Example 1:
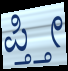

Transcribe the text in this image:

ಪ್ತ್ತೀ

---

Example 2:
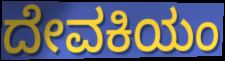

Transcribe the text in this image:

ದೇವಕಿಯಂ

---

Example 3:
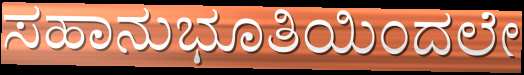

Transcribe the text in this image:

ಸಹಾನುಭೂತಿಯಿಂದಲೇ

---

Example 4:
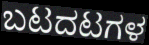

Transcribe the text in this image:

ಬಟದಟಗಳ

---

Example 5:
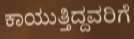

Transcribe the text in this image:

ಕಾಯುತ್ತಿದ್ದವರಿಗೆ